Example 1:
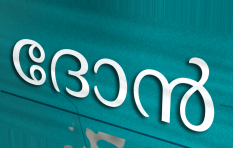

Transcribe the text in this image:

ദോൻ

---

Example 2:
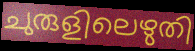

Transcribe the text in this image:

ചുരുളിലെഴുതി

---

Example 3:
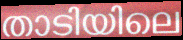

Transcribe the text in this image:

താടിയിലെ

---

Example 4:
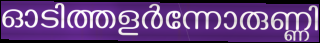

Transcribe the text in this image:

ഓടിത്തളർന്നോരുണ്ണി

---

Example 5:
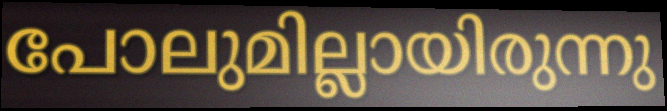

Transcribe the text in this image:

പോലുമില്ലായിരുന്നു